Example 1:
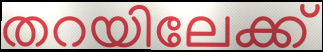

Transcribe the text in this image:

തറയിലേക്ക്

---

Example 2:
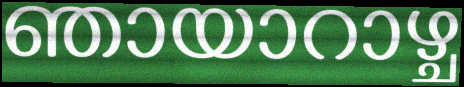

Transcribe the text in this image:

ഞായാറാഴ്ച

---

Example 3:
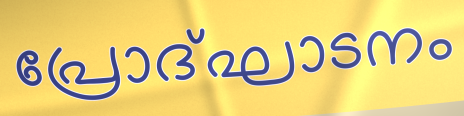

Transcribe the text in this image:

പ്രോദ്ഘാടനം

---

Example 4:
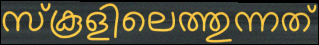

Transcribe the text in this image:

സ്കൂളിലെത്തുന്നത്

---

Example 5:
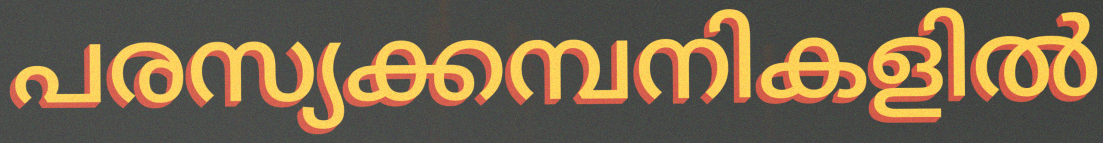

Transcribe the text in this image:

പരസ്യക്കമ്പനികളിൽ